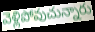
వెళ్లిపోవుచున్నారు